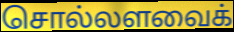
சொல்லளவைக்